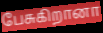
பேசுகிறானா